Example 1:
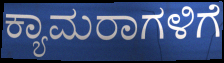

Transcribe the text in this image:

ಕ್ಯಾಮರಾಗಳಿಗೆ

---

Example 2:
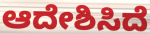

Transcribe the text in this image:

ಆದೇಶಿಸಿದೆ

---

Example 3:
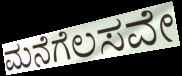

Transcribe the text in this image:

ಮನೆಗೆಲಸವೇ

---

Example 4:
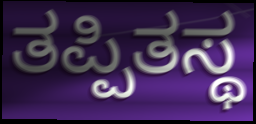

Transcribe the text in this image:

ತಪ್ಪಿತಸ್ಥ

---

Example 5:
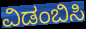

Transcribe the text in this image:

ವಿಡಂಬಿಸಿ